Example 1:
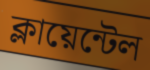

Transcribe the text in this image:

ক্লায়েন্টেল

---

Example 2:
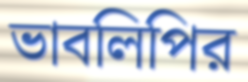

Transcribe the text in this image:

ভাবলিপির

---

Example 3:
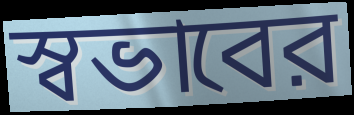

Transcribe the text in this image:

স্বভাবের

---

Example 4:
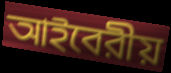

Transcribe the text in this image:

আইবেরীয়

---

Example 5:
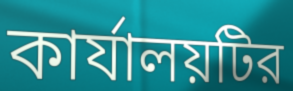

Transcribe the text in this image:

কার্যালয়টির